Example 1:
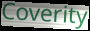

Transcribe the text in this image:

Coverity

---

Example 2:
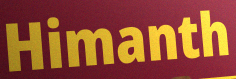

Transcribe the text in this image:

Himanth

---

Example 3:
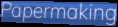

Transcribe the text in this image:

Papermaking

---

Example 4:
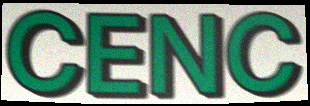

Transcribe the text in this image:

CENC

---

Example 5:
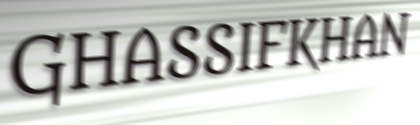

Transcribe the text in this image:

GHASSIFKHAN